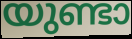
യുണ്ടാ